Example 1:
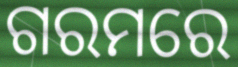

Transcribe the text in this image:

ଗରମରେ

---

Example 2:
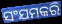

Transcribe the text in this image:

ସଂଯମକରି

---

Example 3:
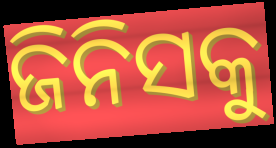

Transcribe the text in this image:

ଜିନିସକୁ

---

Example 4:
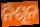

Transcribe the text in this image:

ନିଶୂନ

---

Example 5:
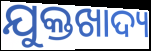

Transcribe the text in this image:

ଯୁକ୍ତଖାଦ୍ୟ